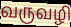
வருவழி